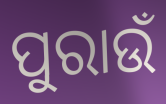
ପୁରାଉଁ